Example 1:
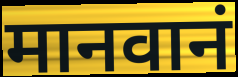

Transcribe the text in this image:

मानवानं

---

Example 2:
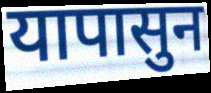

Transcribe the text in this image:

यापासुन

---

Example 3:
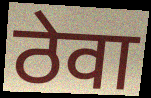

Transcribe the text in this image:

ठेवा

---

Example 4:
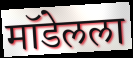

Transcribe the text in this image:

मॉडेलला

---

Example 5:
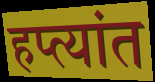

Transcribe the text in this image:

हप्त्यांत